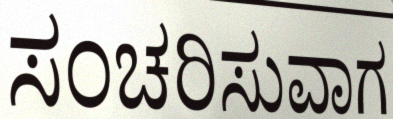
ಸಂಚರಿಸುವಾಗ